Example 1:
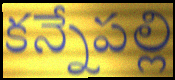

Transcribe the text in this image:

కన్నేపల్లి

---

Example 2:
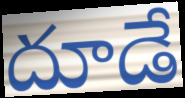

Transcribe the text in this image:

దూడే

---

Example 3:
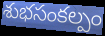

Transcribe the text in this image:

శుభసంకల్పం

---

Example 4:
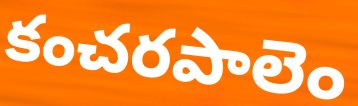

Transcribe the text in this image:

కంచరపాలెం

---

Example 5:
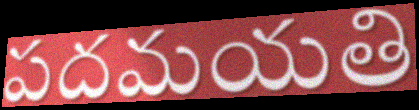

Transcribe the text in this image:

పదమయతి